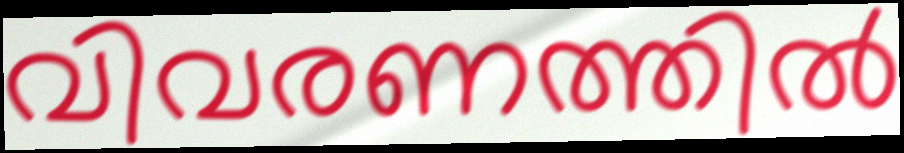
വിവരണത്തിൽ